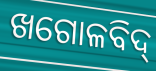
ଖଗୋଳବିଦ୍